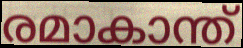
രമാകാന്ത്